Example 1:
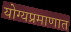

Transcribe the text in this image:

योग्यप्रमाणात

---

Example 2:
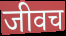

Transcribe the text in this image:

जीवच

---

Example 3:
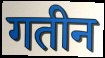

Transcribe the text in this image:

गतीन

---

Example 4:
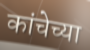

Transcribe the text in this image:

कांचेच्या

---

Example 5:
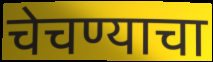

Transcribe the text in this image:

चेचण्याचा